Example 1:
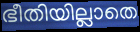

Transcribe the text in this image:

ഭീതിയില്ലാതെ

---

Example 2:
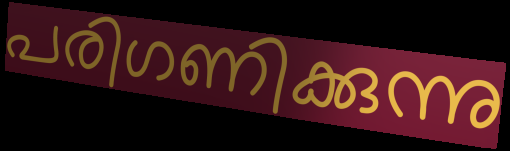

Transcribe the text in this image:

പരിഗണിക്കുന്നു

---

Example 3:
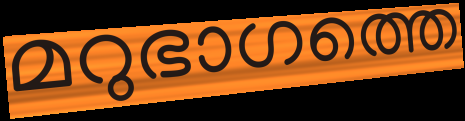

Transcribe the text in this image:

മറുഭാഗത്തെ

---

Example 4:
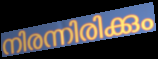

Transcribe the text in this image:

നിരന്നിരിക്കും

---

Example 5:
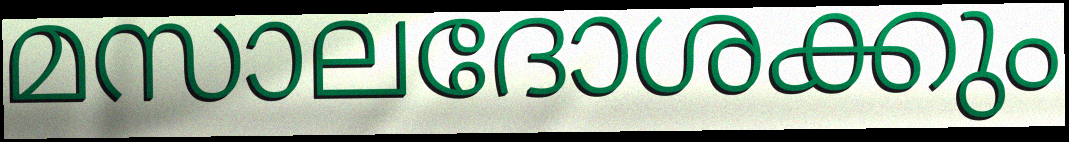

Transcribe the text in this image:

മസാലദോശക്കും